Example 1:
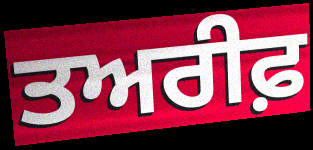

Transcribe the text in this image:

ਤਅਰੀਫ਼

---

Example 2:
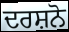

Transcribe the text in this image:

ਦਰਸ਼ਨੋ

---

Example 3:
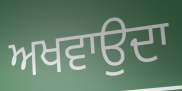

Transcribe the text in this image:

ਅਖਵਾਉਦਾ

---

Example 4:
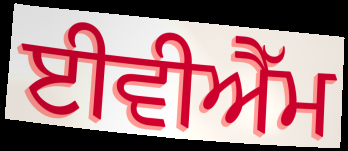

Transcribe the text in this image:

ਈਵੀਐੱਮ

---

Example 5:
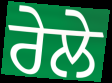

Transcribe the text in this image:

ਰੇਲੇ